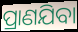
ପ୍ରାଣଯିବା